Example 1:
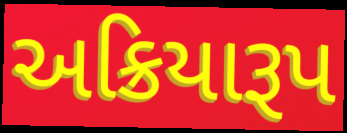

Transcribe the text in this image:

અક્રિયારૂપ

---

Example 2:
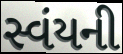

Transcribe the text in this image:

સ્વંયની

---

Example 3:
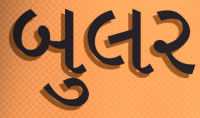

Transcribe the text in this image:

બુલર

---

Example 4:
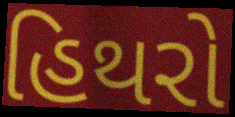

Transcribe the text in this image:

હિથરો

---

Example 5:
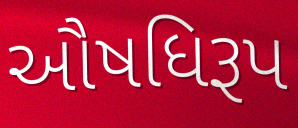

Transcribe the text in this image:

ઔષધિરૂપ